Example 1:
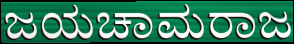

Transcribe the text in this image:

ಜಯಚಾಮರಾಜ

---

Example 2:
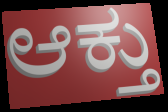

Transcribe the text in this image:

ಆಕ್ತು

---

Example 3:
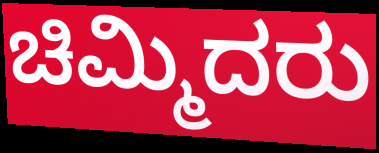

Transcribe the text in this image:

ಚಿಮ್ಮಿದರು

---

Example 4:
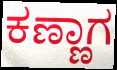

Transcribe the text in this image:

ಕಣ್ಣಾಗ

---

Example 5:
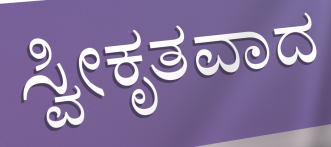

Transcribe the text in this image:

ಸ್ವೀಕೃತವಾದ